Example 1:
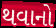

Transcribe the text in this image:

થવાનો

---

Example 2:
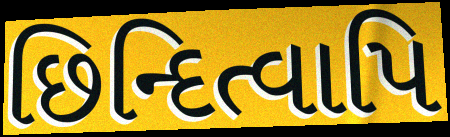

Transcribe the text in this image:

છિન્દિત્વાપિ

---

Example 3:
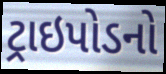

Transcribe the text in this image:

ટ્રાઇપોડનો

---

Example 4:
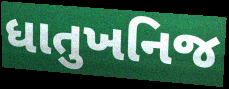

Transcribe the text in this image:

ધાતુખનિજ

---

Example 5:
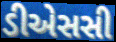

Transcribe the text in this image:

ડીએસસી